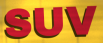
SUV